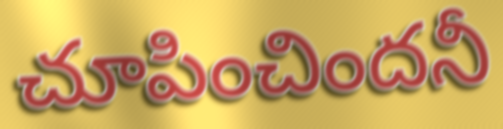
చూపించిందనీ